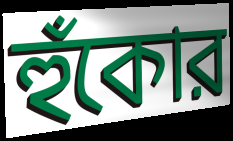
হুঁকোর